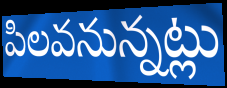
పిలవనున్నట్లు